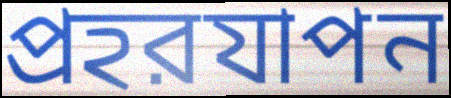
প্রহরযাপন